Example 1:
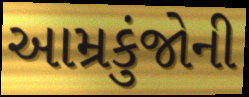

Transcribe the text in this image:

આમ્રકુંજોની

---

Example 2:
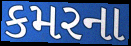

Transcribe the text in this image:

કમરના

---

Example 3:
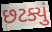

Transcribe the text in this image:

છટક્યું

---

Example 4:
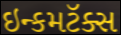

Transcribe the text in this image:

ઇન્કમટૅક્સ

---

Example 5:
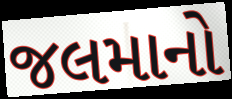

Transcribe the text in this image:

જલમાનો